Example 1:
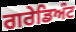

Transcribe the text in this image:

ਗਰੇਡਿਅੰਟ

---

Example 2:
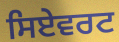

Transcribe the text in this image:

ਸਿਏਵਰਟ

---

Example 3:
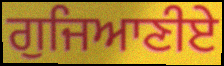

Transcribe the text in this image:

ਗੁਜਿਆਣੀਏ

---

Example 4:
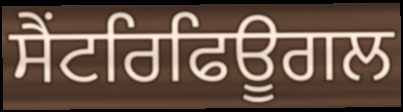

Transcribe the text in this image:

ਸੈਂਟਰਿਫਿਊਗਲ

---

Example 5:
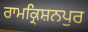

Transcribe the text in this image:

ਰਾਮਕ੍ਰਿਸ਼ਨਪੁਰ